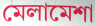
মেলামেশা